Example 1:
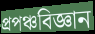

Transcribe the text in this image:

প্ৰপঞ্চবিজ্ঞান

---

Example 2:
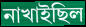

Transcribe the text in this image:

নাখাইছিল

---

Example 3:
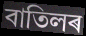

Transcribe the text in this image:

বাতিলৰ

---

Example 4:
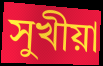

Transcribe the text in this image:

সুখীয়া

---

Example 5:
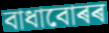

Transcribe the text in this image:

বাধাবোৰৰ